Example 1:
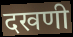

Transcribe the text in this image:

दखणी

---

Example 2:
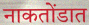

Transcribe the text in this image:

नाकतोंडात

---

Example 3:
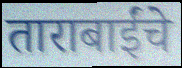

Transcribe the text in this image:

ताराबाईंचे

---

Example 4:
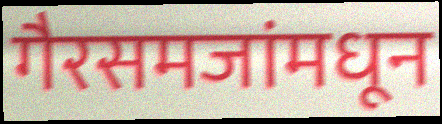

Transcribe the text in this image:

गैरसमजांमधून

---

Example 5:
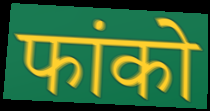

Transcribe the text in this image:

फांको